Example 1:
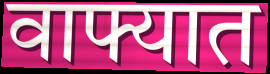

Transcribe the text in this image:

वाफ्यात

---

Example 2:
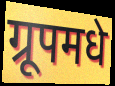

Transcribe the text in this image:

ग्रूपमधे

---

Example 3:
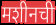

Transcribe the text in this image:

मशीनची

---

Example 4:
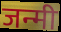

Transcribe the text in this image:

जन्मी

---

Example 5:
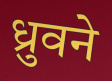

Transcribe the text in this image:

ध्रुवने